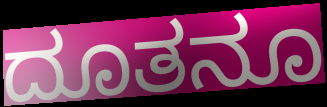
ದೂತನೂ